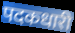
पदकधारी